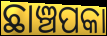
ଛାଞ୍ଚପକା